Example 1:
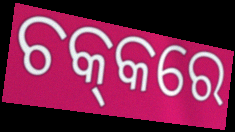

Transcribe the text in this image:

ଚକ୍‌କରେ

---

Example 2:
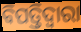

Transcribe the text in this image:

ବିପତ୍ତିଦ୍ୱାରା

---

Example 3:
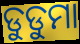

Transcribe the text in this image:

ଡୁଡୁମା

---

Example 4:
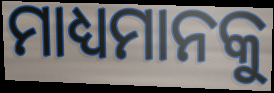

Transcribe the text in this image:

ମାଧ୍ଯମାନକୁ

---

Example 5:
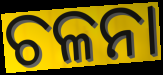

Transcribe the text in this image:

ଚଳନା